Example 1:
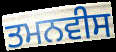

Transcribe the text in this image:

ਤਮਨਵੀਸ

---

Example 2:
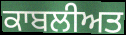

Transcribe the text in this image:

ਕਾਬਲੀਅਤ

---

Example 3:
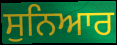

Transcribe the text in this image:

ਸੁਨਿਆਰ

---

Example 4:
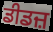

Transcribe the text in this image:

ਡੀਡਜ਼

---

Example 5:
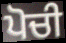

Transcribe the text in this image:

ਪੋਚੀ